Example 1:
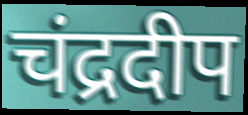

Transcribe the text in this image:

चंद्रदीप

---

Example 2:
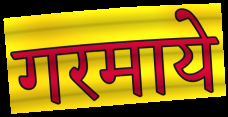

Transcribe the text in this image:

गरमाये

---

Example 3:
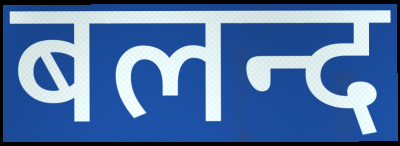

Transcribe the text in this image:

बलन्द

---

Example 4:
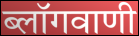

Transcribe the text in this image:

ब्लॉगवाणी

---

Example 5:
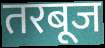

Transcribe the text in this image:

तरबूज